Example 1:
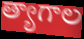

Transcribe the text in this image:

త్యాగాల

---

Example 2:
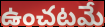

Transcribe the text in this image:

ఉంచటమే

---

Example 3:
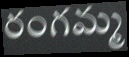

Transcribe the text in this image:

రంగమ్మ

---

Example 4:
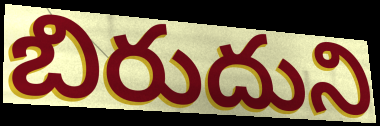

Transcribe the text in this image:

బిరుదుని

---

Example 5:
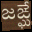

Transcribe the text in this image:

జఙ్ఘే